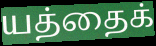
யத்தைக்